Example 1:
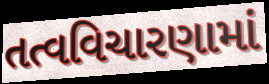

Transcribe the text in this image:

તત્વવિચારણામાં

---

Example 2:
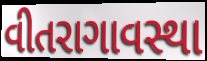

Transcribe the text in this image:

વીતરાગાવસ્થા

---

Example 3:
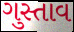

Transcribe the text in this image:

ગુસ્તાવ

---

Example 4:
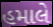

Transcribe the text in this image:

હમાલે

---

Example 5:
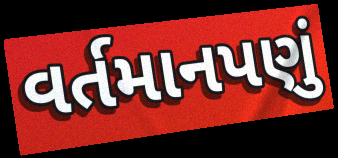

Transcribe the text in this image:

વર્તમાનપણું